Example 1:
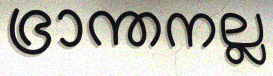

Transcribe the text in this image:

ഭ്രാന്തനല്ല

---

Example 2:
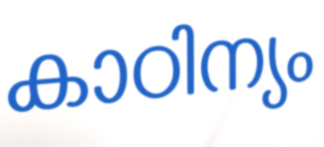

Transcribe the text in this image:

കാഠിന്യം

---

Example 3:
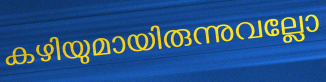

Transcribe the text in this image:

കഴിയുമായിരുന്നുവല്ലോ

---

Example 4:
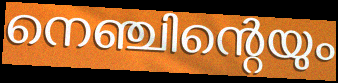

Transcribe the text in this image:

നെഞ്ചിന്റെയും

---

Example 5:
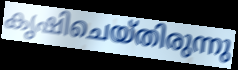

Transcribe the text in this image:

കൃഷിചെയ്തിരുന്നു